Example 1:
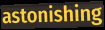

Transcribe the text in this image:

astonishing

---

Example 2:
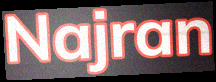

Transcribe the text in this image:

Najran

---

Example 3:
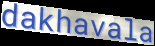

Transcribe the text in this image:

dakhavala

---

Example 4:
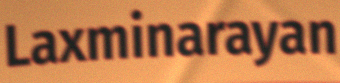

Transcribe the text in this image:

Laxminarayan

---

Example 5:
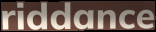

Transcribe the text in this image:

riddance